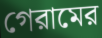
গেরামের